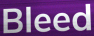
Bleed